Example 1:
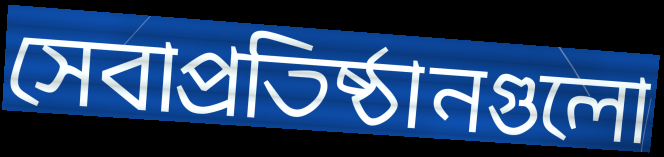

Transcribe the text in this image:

সেবাপ্রতিষ্ঠানগুলো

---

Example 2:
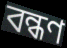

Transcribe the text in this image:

বন্ধণ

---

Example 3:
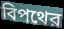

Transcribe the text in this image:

বিপথের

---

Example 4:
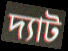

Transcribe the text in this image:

দ্যাট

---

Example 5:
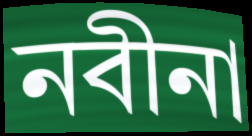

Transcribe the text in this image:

নবীনা